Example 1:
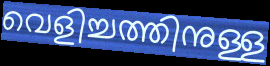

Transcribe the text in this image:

വെളിച്ചത്തിനുള്ള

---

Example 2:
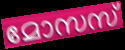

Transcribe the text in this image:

മോസസ്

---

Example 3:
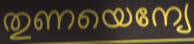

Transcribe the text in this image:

തുണയെന്യേ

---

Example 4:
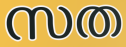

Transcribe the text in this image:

സത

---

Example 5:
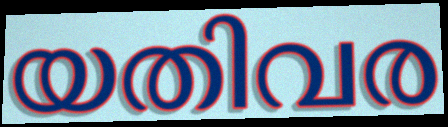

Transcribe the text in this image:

യതിവര